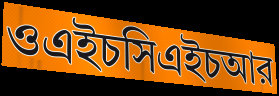
ওএইচসিএইচআর